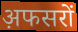
अ़फसरों